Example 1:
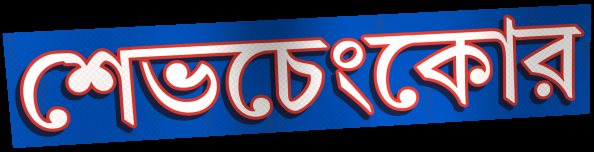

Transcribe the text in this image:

শেভচেংকোর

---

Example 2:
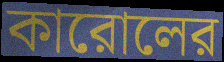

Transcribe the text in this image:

কারোলের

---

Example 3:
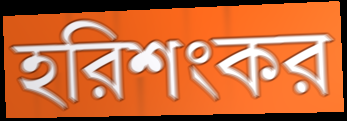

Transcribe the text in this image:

হরিশংকর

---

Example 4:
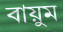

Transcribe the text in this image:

বায়ুম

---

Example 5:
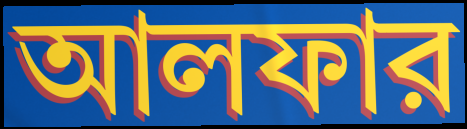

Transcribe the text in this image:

আলফার